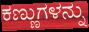
ಕಣ್ಣುಗಳನ್ನು